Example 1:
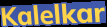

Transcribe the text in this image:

Kalelkar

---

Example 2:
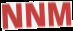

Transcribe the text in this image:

NNM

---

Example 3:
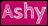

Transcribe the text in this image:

Ashy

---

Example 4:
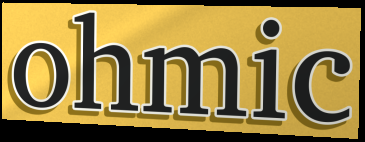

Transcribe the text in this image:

ohmic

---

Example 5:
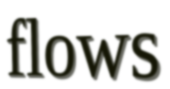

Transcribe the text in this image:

flows